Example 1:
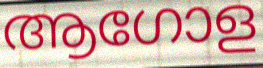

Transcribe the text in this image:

ആഗോള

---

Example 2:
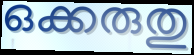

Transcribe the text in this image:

ഒക്കരുതു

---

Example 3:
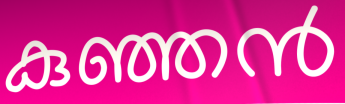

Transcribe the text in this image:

കുഞ്ഞൻ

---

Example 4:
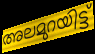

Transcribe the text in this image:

അലമുറയിട്ട്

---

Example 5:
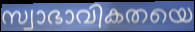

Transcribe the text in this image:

സ്വാഭാവികതയെ